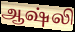
ஆஷ்லி